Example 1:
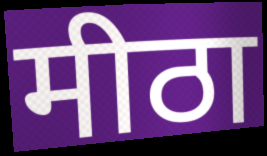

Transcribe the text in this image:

मीठा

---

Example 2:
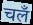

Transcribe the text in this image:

चलँ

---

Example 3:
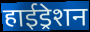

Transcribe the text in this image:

हाईड्रेशन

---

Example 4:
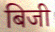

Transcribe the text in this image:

बिजी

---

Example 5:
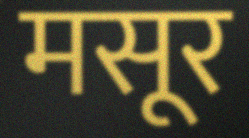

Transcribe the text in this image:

मसूर